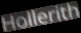
Hollerith